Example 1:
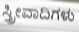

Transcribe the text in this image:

ಸ್ತ್ರೀವಾದಿಗಳು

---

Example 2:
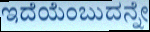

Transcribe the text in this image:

ಇದೆಯೆಂಬುದನ್ನೇ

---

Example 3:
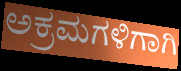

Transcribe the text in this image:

ಅಕ್ರಮಗಳಿಗಾಗಿ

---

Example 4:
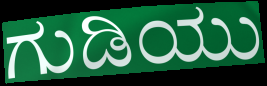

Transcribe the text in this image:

ಗುಡಿಯು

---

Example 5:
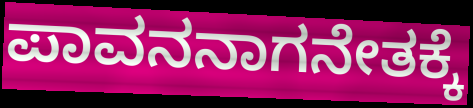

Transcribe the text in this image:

ಪಾವನನಾಗನೇತಕ್ಕೆ